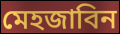
মেহজাবিন